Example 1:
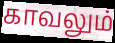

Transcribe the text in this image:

காவலும்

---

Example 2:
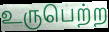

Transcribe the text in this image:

உருபெற்ற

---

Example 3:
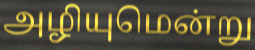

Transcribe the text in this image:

அழியுமென்று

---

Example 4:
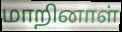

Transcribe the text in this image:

மாறினாள்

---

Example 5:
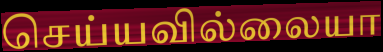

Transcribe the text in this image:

செய்யவில்லையா